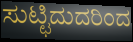
ಸುಟ್ಟಿದುದರಿಂದ